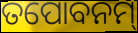
ତପୋବନମ୍